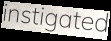
instigated